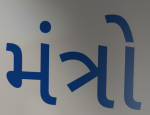
મંત્રો